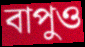
বাপুও